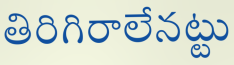
తిరిగిరాలేనట్టు